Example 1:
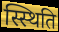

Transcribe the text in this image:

स्स्थिति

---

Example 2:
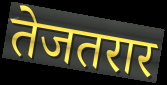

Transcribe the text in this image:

तेजतरार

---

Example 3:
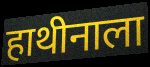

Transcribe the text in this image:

हाथीनाला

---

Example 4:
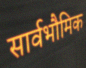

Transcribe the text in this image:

सार्वभौमिक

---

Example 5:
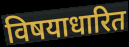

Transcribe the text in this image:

विषयाधारित